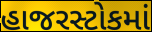
હાજરસ્ટોકમાં